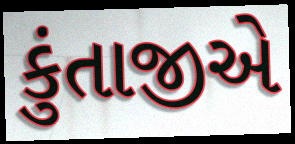
કુંતાજીએ